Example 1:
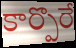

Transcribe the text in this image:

కార్పొరే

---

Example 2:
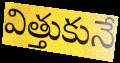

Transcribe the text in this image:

విత్తుకునే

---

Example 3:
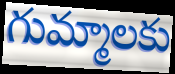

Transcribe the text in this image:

గుమ్మాలకు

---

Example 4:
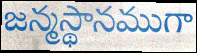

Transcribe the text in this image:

జన్మస్థానముగా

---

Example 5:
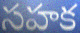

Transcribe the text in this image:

సహక